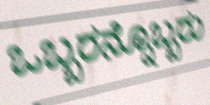
ಒಬ್ಬರನ್ನೊಬ್ಬರು